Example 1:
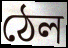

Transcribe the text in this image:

ঠেল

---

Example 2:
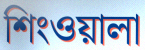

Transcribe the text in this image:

শিংওয়ালা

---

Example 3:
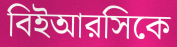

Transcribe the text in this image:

বিইআরসিকে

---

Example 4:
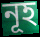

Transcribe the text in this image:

নূহ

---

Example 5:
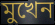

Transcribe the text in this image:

মুখেন